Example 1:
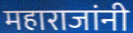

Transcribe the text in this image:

महाराजांनी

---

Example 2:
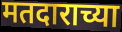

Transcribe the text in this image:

मतदाराच्या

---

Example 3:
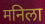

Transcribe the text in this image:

मनिला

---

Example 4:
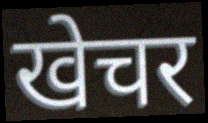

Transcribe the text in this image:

खेचर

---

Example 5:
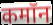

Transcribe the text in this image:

कमॉन